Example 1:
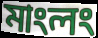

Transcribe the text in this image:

মাংলং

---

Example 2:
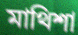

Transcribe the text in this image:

মাথিশা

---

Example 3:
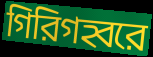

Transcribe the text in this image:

গিরিগহ্বরে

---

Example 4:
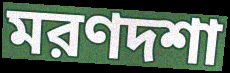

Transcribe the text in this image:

মরণদশা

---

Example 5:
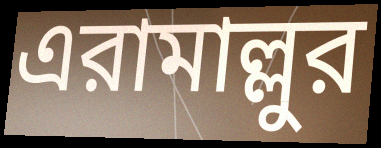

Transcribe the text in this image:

এরামাল্লুর